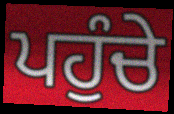
ਪਹੁੰਚੇ